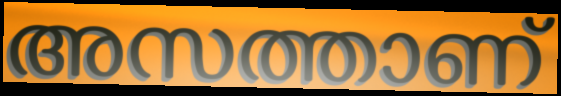
അസത്താണ്